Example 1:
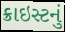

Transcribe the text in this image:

ક્રાઇસ્ટનું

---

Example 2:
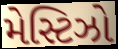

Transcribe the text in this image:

મેસ્ટિઝો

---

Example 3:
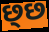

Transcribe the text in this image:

છ્છ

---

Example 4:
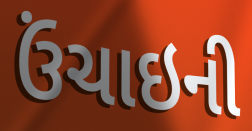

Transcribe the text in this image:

ઉંચાઇની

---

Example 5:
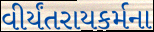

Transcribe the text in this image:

વીર્યંતરાયકર્મના